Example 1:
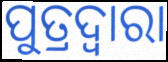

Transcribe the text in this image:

ପୁତ୍ରଦ୍ୱାରା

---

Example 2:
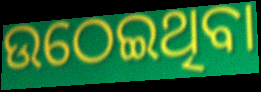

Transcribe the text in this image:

ଉଠେଇଥିବା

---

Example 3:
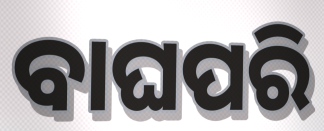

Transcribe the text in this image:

ବାଘପରି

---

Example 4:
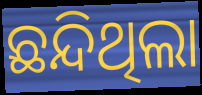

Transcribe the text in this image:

ଛନ୍ଦିଥିଲା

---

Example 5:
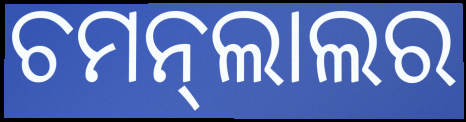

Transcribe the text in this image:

ଚମନ୍‍ଲାଲର